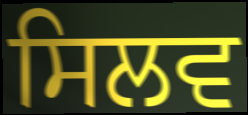
ਸਿਲਵ